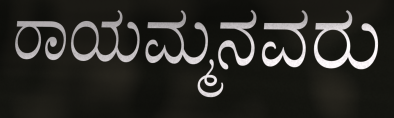
ರಾಯಮ್ಮನವರು